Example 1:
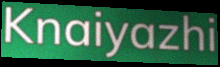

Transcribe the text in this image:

Knaiyazhi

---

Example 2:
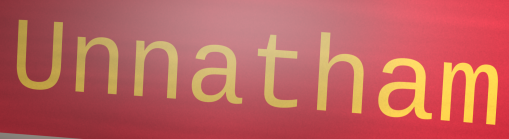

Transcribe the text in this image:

Unnatham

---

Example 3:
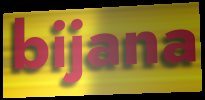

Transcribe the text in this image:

bijana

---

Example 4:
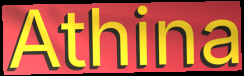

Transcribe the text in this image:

Athina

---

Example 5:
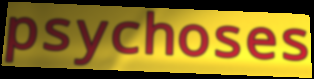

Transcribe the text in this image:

psychoses